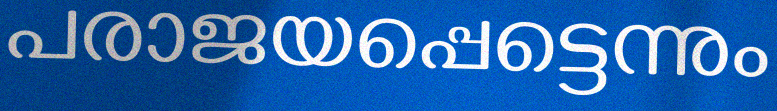
പരാജയപ്പെട്ടെന്നും